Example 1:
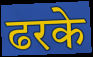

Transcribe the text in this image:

ढरके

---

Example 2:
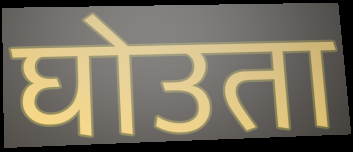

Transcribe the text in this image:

घोउता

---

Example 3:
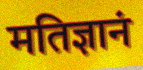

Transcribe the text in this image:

मतिज्ञानं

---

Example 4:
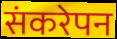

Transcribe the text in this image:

संकरेपन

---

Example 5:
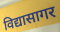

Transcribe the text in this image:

विद्यासागर